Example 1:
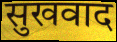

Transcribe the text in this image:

सुखवाद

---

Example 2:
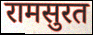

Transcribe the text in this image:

रामसुरत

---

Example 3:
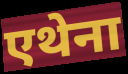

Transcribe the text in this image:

एथेना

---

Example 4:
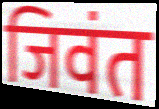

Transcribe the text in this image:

जिवंत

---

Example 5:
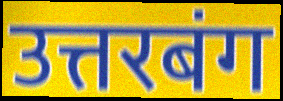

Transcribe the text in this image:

उत्तरबंग